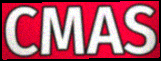
CMAS